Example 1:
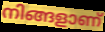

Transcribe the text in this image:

നിങ്ങളാണ്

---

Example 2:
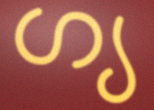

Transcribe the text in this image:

ഗ്യ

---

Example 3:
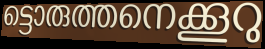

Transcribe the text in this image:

ട്ടൊരുത്തനെക്കൂറു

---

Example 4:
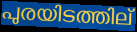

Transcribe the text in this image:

പുരയിടത്തില്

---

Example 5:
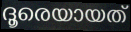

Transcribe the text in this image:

ദൂരെയായത്